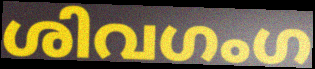
ശിവഗംഗ